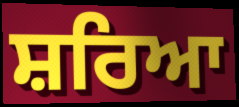
ਸ਼ਰਿਆ